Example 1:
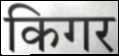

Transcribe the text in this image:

किगर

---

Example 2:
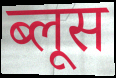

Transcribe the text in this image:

ब्लूस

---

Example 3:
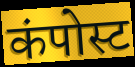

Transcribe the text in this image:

कंपोस्ट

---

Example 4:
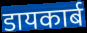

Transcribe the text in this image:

डायकार्ब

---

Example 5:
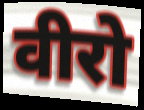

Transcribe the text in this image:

वीरो